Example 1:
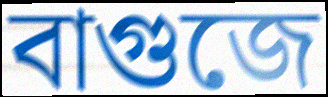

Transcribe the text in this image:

বাগুজে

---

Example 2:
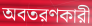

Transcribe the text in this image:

অবতরণকারী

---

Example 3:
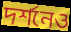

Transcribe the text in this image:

দর্শনেও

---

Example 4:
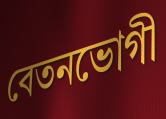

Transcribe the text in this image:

বেতনভোগী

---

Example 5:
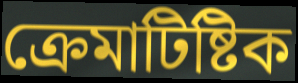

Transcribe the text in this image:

ক্রেমাটিষ্টিক